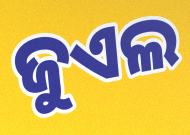
ଜୁଏଲ